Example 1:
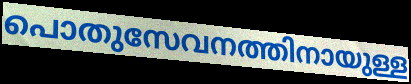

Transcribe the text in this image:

പൊതുസേവനത്തിനായുള്ള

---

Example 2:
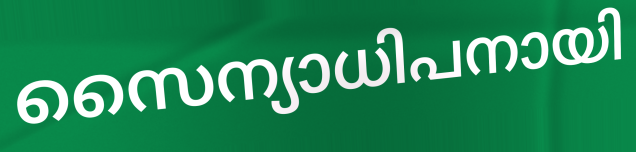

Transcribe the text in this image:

സൈന്യാധിപനായി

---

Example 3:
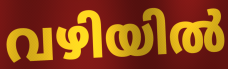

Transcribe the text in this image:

വഴിയിൽ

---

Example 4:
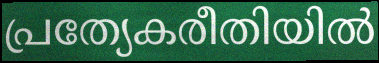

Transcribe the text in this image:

പ്രത്യേകരീതിയിൽ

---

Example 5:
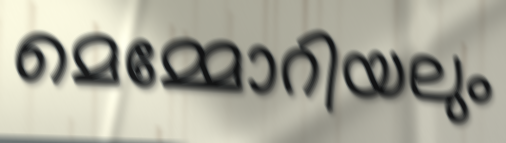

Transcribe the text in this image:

മെമ്മോറിയലും